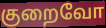
குறைவோ